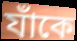
যাঁকে